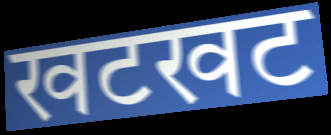
खटखट